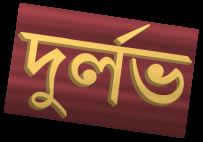
দুৰ্লভ